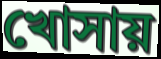
খোসায়